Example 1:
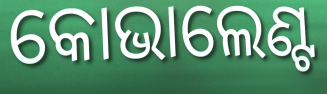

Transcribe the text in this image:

କୋଭାଲେଣ୍ଟ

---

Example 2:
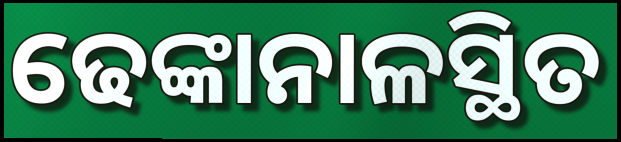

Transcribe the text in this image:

ଢେଙ୍କାନାଳସ୍ଥିତ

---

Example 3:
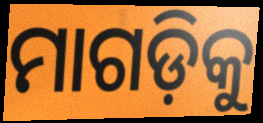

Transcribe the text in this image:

ମାଗଡ଼ିକୁ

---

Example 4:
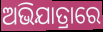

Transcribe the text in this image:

ଅଭିଯାତ୍ରାରେ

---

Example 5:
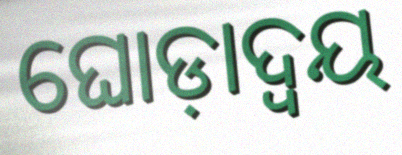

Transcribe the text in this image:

ଘୋଡ଼ାଦ୍ୱୟ